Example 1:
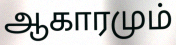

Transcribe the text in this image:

ஆகாரமும்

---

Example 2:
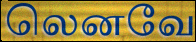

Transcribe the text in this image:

லெனவே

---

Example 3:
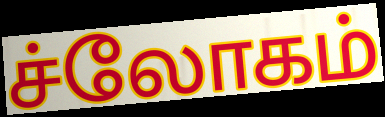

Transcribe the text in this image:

ச்லோகம்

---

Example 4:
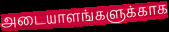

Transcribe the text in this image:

அடையாளங்களுக்காக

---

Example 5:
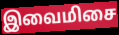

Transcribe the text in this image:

இவைமிசை